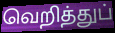
வெறித்துப்